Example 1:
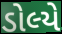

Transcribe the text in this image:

ડોલ્યે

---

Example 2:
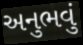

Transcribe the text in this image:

અનુભવું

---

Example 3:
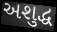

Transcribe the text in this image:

અશુદ્ધ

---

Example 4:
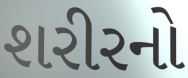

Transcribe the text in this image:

શરીરનો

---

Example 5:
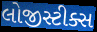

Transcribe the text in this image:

લોજીસ્ટીક્સ